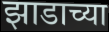
झाडाच्या